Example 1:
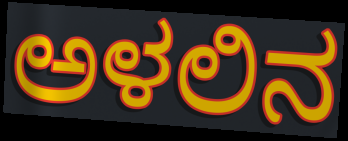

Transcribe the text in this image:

ಅಳಲಿನ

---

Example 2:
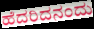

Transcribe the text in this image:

ಹೆದರಿದನಂದು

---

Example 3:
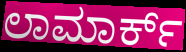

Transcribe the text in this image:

ಲಾಮಾರ್ಕ್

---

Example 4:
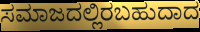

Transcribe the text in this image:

ಸಮಾಜದಲ್ಲಿರಬಹುದಾದ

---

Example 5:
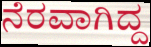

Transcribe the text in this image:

ನೆರವಾಗಿದ್ದ